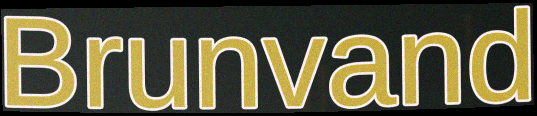
Brunvand